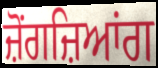
ਜ਼ੋਂਗਜ਼ਿਆਂਗ